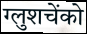
ग्लुशचेंको